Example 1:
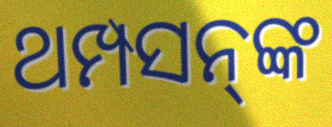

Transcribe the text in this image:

ଥମ୍ପସନ୍‌ଙ୍କ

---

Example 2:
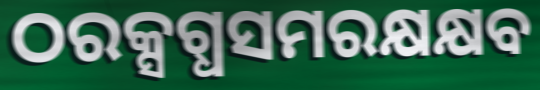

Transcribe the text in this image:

ଠରକ୍ସଗ୍ଧସମରକ୍ଷକ୍ଷବ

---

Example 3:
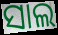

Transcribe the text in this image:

ସାଲ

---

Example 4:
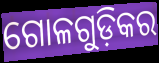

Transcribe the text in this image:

ଗୋଳଗୁଡ଼ିକର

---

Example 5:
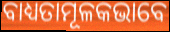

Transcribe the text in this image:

ବାଧ୍ୟତାମୂଳକଭାବେ